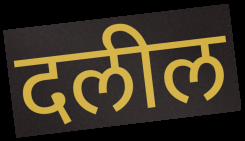
दलील